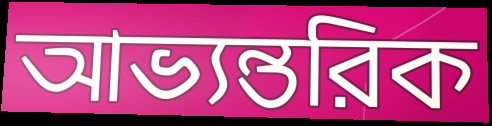
আভ্যন্তরিক